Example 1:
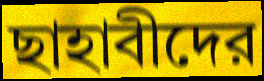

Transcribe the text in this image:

ছাহাবীদের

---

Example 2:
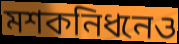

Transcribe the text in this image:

মশকনিধনেও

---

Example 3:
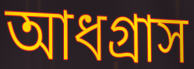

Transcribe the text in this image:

আধগ্রাস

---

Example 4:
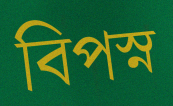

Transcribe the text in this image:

বিপস্ন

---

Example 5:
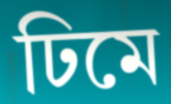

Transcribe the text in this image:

ঢিমে